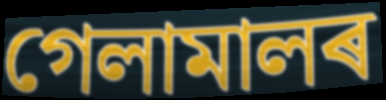
গেলামালৰ